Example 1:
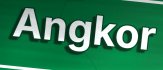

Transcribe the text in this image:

Angkor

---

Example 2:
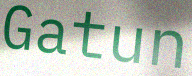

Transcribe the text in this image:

Gatun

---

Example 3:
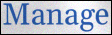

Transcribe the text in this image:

Manage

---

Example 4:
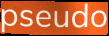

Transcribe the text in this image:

pseudo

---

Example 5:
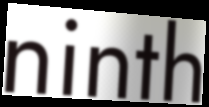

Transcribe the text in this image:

ninth